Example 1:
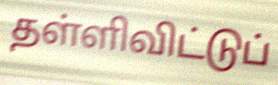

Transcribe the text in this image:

தள்ளிவிட்டுப்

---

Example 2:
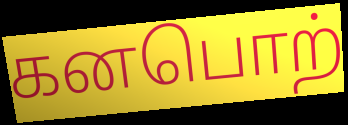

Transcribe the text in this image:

கனபொற்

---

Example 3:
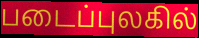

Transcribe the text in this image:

படைப்புலகில்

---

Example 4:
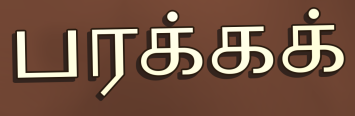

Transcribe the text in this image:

பரக்கக்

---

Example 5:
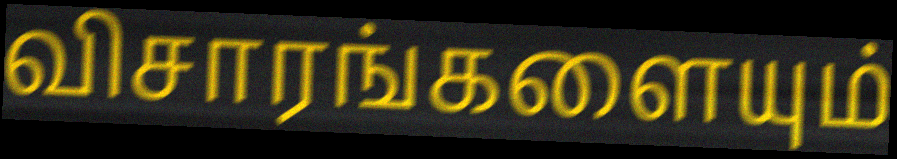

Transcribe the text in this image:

விசாரங்களையும்